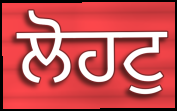
ਲੋਹਟੁ